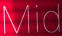
Mid